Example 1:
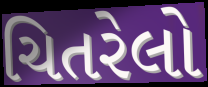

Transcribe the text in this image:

ચિતરેલો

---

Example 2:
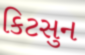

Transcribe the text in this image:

કિટસુન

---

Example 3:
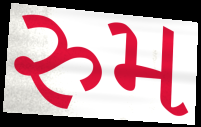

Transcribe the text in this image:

રુમ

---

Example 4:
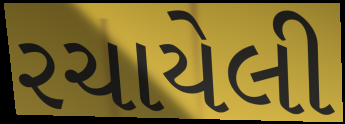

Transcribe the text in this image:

રચાયેલી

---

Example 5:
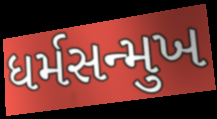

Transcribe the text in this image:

ધર્મસન્મુખ